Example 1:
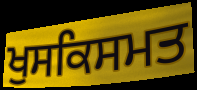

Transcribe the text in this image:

ਖੁਸਕਿਸਮਤ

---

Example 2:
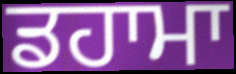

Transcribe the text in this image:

ਡਹਾਮਾ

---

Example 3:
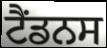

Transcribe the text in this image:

ਟੈਂਡਨਸ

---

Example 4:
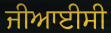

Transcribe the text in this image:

ਜੀਆਈਸੀ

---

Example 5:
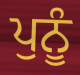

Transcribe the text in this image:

ਪੁਨੂੰ